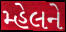
મ્હેલને